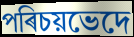
পৰিচয়ভেদে